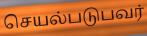
செயல்படுபவர்